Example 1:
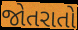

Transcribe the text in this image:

જોતરાતો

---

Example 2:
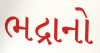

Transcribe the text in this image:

ભદ્રાનો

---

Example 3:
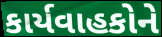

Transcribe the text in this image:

કાર્યવાહકોને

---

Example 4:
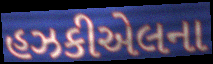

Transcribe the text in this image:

હઝકીએલના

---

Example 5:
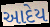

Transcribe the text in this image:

આદેય